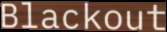
Blackout